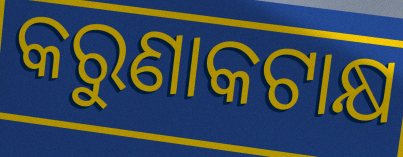
କରୁଣାକଟାକ୍ଷ